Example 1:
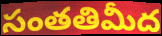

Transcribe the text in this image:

సంతతిమీద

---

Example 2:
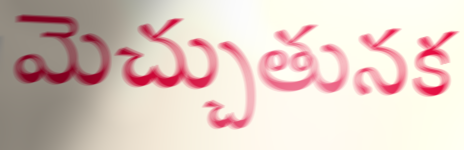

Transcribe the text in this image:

మెచ్చుతునక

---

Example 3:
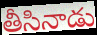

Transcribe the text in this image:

తీసినాడు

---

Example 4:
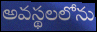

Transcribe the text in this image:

అవస్థలలోను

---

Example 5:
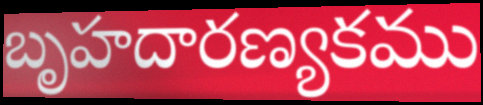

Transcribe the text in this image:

బృహదారణ్యకము